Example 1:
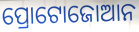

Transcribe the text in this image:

ପ୍ରୋଟୋଜୋଆନ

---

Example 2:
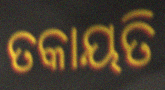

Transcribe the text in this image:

ତକାୟତି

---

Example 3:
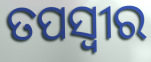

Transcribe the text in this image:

ତପସ୍ଵୀର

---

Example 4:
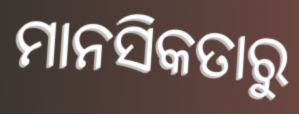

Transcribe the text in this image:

ମାନସିକତାରୁ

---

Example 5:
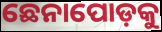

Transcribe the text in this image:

ଛେନାପୋଡ଼କୁ